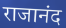
राजानंद